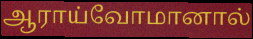
ஆராய்வோமானால்